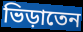
ভিড়াতেন